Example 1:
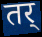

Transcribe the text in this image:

तर्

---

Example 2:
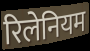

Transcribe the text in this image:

रिलेनियम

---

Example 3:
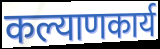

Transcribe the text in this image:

कल्याणकार्य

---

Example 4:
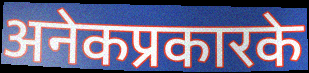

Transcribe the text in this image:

अनेकप्रकारके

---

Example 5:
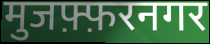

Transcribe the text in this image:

मुजफ़्फ़रनगर